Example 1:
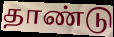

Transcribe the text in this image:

தாண்டு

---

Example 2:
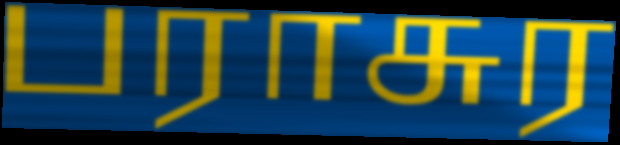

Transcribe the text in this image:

பராசுர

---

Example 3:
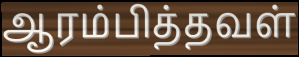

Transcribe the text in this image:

ஆரம்பித்தவள்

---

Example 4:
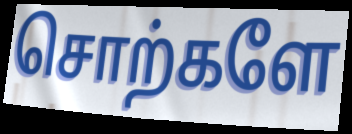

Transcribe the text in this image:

சொற்களே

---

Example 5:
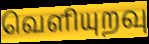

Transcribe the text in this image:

வெளியுறவு